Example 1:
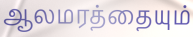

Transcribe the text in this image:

ஆலமரத்தையும்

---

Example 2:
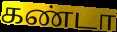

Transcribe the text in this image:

கண்டா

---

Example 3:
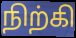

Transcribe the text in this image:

நிற்கி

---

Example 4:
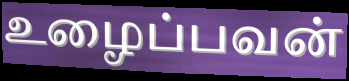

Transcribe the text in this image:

உழைப்பவன்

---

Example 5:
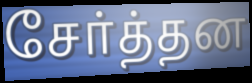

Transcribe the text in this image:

சேர்த்தன